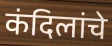
कंदिलांचे